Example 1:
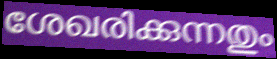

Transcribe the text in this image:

ശേഖരിക്കുന്നതും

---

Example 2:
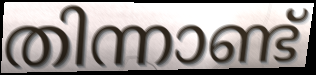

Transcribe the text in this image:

തിന്നാണ്ട്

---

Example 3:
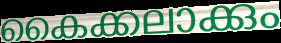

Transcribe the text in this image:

കൈക്കലാക്കും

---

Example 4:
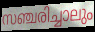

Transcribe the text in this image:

സഞ്ചരിച്ചാലും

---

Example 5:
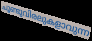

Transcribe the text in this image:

ചൂണ്ടുവിരലുകളാവുന്ന